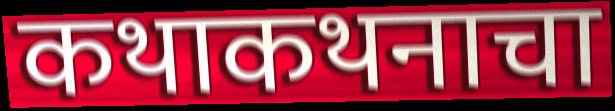
कथाकथनाचा